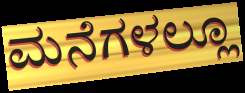
ಮನೆಗಳಲ್ಲೂ